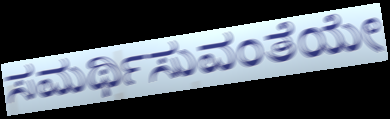
ಸಮರ್ಥಿಸುವಂತೆಯೇ